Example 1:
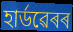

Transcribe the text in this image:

হাৰ্ডৱেৰৰ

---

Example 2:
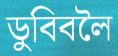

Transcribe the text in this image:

ডুবিবলৈ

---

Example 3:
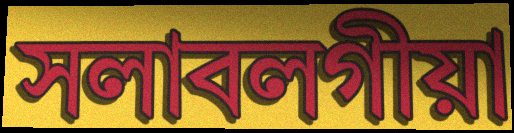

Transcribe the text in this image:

সলাবলগীয়া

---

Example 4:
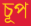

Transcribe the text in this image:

চূপ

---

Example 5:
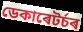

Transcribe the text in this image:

ডেকাৰেটৰ্চৰ